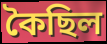
কৈছিল